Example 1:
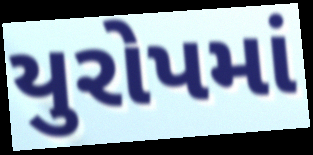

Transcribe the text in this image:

યુરોપમાં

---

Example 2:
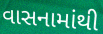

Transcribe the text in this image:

વાસનામાંથી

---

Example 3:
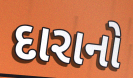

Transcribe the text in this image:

દારાનો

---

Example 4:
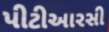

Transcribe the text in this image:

પીટીઆરસી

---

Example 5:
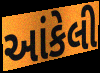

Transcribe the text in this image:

આંકેલી